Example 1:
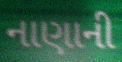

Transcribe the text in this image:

નાણાની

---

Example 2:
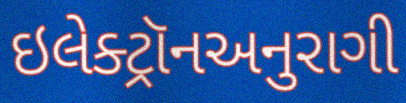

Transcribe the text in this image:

ઇલેક્ટ્રૉનઅનુરાગી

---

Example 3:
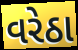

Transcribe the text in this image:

વરેઠા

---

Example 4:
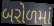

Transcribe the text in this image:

બરોળમાં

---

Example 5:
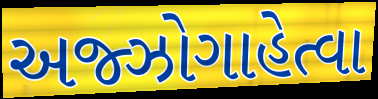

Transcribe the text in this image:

અજ્ઝોગાહેત્વા